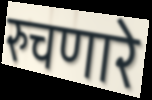
रुचणारे